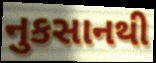
નુકસાનથી